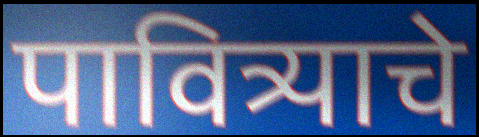
पावित्र्याचे